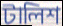
টালিশ